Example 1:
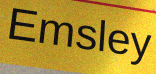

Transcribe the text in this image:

Emsley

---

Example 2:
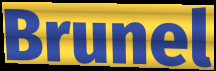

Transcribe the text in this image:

Brunel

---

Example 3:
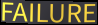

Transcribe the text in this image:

FAILURE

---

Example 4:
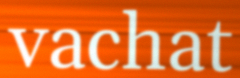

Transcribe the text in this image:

vachat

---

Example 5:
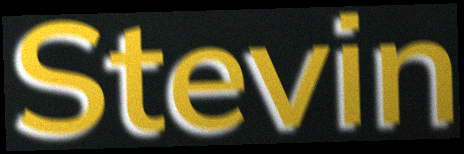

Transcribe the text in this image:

Stevin